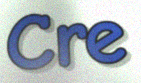
Cre